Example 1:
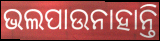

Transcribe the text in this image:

ଭଲପାଉନାହାନ୍ତି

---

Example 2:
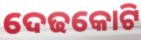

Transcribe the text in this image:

ଦେଢକୋଟି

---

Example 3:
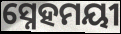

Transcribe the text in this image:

ସ୍ନେହମୟୀ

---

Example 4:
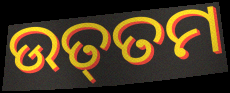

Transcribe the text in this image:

ଉତ୍‌ତମ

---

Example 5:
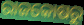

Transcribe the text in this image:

ରାଜକୋଷରୁ